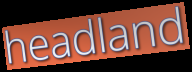
headland